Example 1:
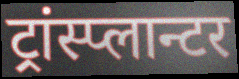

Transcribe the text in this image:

ट्रांस्प्लान्टर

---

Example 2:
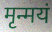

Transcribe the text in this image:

मृन्मयं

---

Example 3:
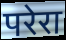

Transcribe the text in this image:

परेरा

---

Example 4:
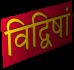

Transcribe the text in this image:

विद्विषां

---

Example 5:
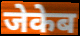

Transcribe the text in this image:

जेकेब